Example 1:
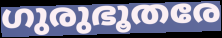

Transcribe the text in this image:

ഗുരുഭൂതരേ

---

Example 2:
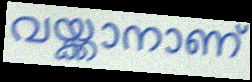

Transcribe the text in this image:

വയ്ക്കാനാണ്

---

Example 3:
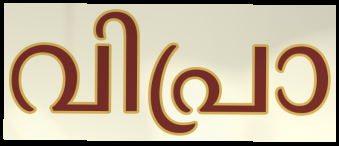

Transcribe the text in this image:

വിപ്രാ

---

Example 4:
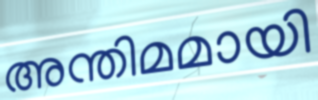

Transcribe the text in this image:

അന്തിമമായി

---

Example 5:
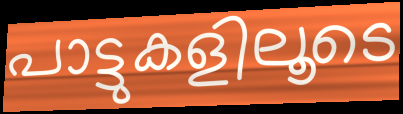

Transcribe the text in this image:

പാട്ടുകളിലൂടെ